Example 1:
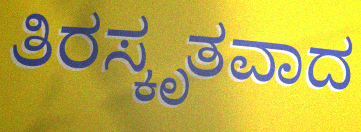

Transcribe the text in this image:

ತಿರಸ್ಕೃತವಾದ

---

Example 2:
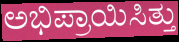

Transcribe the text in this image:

ಅಭಿಪ್ರಾಯಿಸಿತ್ತು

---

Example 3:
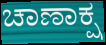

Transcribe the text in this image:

ಚಾಣಾಕ್ಷ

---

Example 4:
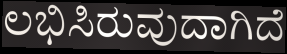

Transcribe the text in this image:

ಲಭಿಸಿರುವುದಾಗಿದೆ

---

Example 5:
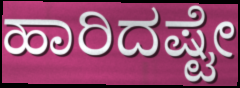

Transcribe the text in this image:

ಹಾರಿದಷ್ಟೇ